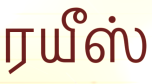
ரயீஸ்